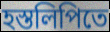
হস্তলিপিতে